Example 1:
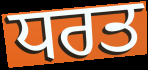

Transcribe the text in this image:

ਧਰਤ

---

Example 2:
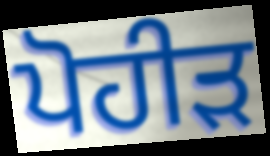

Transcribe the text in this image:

ਪੋਹੀੜ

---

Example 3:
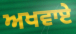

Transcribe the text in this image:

ਅਖਵਾਏ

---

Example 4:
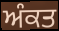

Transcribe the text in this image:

ਅੰਕਤ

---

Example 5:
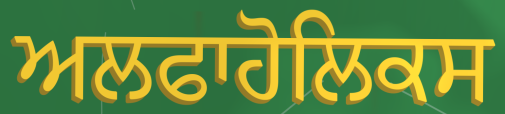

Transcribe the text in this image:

ਅਲਫਾਹੋਲਿਕਸ